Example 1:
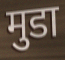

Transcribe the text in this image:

मुडा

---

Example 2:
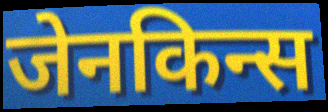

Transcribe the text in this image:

जेनकिन्स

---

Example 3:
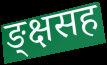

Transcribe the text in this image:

ङ्क्षसह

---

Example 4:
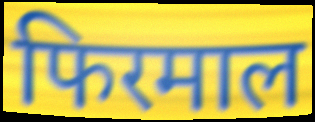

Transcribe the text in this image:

फिरमाल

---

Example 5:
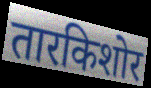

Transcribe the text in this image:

तारकिशोर